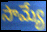
సామ్యే